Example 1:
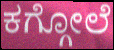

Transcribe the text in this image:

ಕಗ್ಗೋಲೆ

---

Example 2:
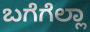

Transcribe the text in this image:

ಬಗೆಗೆಲ್ಲಾ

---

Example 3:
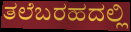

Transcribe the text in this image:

ತಲೆಬರಹದಲ್ಲಿ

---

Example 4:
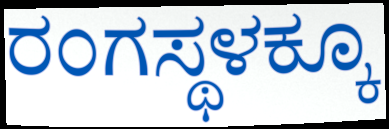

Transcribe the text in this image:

ರಂಗಸ್ಥಳಕ್ಕೂ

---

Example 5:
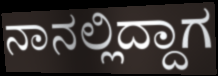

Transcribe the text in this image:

ನಾನಲ್ಲಿದ್ದಾಗ